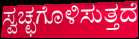
ಸ್ವಚ್ಛಗೊಳಿಸುತ್ತದೆ